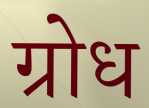
ग्रोध